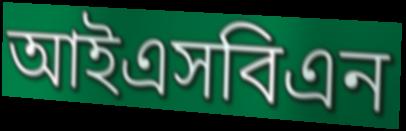
আইএসবিএন